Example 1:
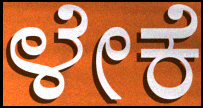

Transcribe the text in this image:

ಳೇಕೆ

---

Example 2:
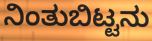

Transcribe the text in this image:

ನಿಂತುಬಿಟ್ಟನು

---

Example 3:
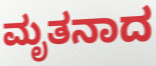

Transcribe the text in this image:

ಮೃತನಾದ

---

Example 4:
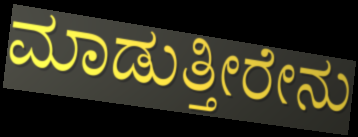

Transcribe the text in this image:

ಮಾಡುತ್ತೀರೇನು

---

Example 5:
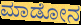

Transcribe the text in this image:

ಮಾಡೋನ